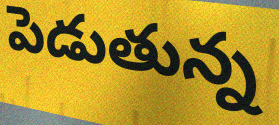
పెడుతున్న